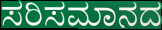
ಸರಿಸಮಾನದ